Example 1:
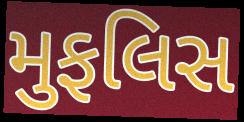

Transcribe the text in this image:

મુફલિસ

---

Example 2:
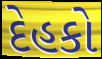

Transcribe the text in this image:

દેહકો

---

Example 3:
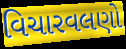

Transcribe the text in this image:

વિચારવલણો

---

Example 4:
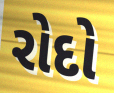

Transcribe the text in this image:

રોદો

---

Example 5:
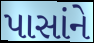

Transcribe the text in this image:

પાસાંને